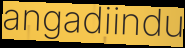
angadiindu